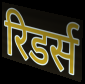
रिडर्स